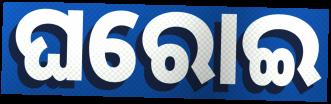
ଘରୋଇ